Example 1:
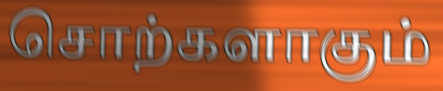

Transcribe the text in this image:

சொற்களாகும்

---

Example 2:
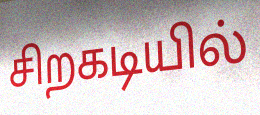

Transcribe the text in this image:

சிறகடியில்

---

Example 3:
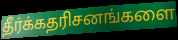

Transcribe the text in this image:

தீர்க்கதரிசனங்களை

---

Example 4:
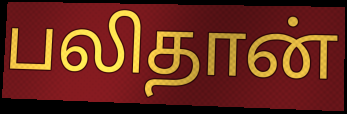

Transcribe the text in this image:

பலிதான்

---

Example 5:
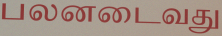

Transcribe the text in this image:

பலனடைவது